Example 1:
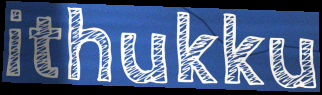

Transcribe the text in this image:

ithukku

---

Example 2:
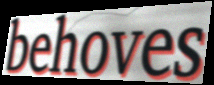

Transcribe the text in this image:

behoves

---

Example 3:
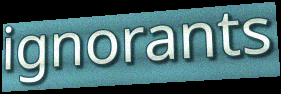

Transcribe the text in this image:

ignorants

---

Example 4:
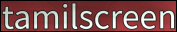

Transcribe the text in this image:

tamilscreen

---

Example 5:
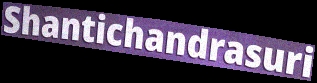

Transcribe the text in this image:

Shantichandrasuri